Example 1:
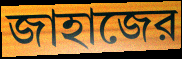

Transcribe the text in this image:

জাহাজের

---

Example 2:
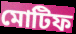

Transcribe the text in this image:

মোটিফ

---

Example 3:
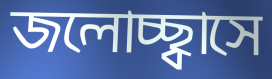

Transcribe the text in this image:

জলোচ্ছ্বাসে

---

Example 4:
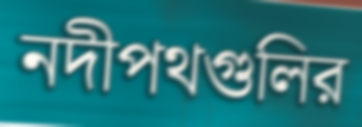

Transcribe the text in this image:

নদীপথগুলির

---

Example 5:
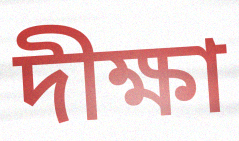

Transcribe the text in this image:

দীক্ষা